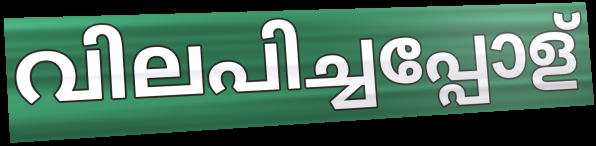
വിലപിച്ചപ്പോള്